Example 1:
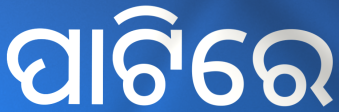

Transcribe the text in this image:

ପାଟିରେ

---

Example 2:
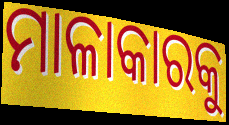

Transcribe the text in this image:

ମାଳାକାରକୁ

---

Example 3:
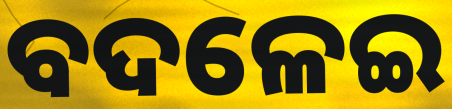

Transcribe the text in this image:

ବଦଳେଇ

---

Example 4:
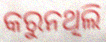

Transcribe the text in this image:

କରୁନଥିଲି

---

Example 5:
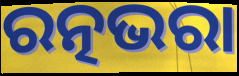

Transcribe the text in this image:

ରତ୍ନଭରା